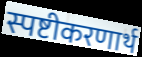
स्पष्टीकरणार्थ